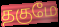
தகுமே